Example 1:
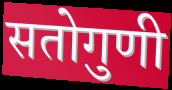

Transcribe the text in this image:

सतोगुणी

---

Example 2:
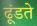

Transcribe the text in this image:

ढूंडते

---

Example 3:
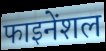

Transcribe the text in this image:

फाइनेंशल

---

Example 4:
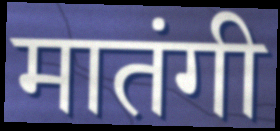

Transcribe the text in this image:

मातंगी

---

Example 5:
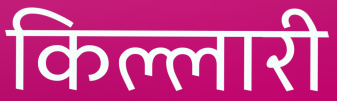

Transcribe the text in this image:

किल्लारी